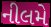
નીલમે